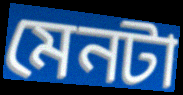
মেনটা